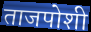
ताजपोशी